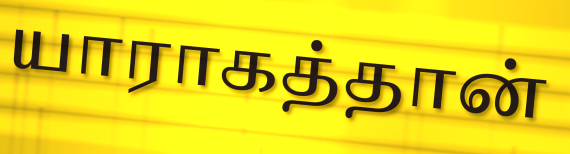
யாராகத்தான்